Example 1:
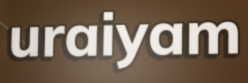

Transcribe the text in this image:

uraiyam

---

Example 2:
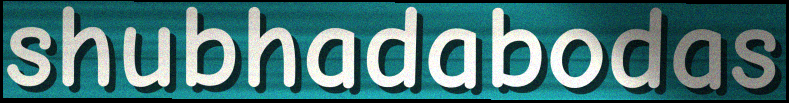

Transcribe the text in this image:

shubhadabodas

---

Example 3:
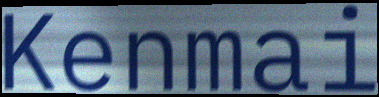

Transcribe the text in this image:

Kenmai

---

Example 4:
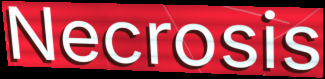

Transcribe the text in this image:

Necrosis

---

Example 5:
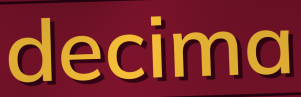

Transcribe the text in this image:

decima